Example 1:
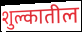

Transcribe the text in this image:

शुल्कातील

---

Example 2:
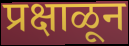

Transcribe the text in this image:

प्रक्षाळून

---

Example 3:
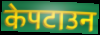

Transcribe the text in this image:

केपटाउन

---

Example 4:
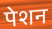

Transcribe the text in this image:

पेशन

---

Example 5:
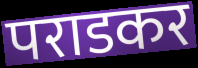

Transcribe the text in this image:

पराडकर